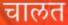
चालत